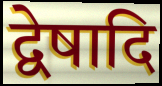
द्वेषादि